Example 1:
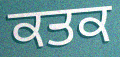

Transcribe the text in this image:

ਕਤਕ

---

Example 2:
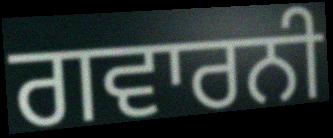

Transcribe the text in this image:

ਗਵਾਰਨੀ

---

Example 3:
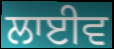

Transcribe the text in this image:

ਲਾਈਵ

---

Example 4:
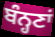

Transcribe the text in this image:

ਬੰਨ੍ਹਣਾਂ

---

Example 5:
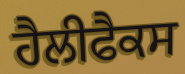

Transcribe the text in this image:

ਹੈਲੀਫੈਕਸ